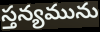
స్తన్యమును